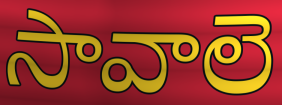
సావాలె